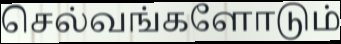
செல்வங்களோடும்